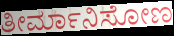
ತೀರ್ಮಾನಿಸೋಣ